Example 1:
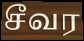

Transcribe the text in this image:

சீவர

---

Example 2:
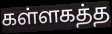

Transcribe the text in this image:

கள்ளகத்த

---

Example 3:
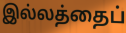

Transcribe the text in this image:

இல்லத்தைப்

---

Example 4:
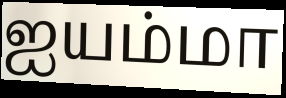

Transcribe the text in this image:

ஐயம்மா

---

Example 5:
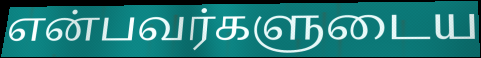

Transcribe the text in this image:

என்பவர்களுடைய